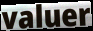
valuer